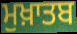
ਮੁਖ਼ਾਤਬ